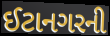
ઈટાનગરની